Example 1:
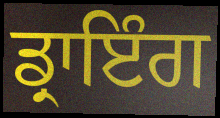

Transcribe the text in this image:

ਡ੍ਰਾਇੰਗ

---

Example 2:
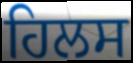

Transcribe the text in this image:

ਹਿਲਸ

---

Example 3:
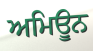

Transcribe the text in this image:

ਅਮਿਊਨ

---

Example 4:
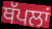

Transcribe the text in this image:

ਥੱਪਲਾਂ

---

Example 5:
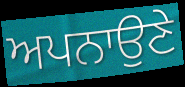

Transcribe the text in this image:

ਅਪਨਾਉਣੇ